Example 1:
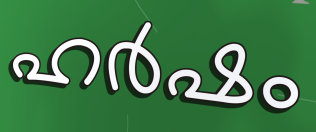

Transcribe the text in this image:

ഹർഷം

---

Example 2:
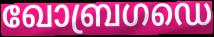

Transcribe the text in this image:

ഖോബ്രഗഡെ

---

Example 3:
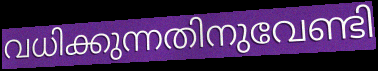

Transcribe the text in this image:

വധിക്കുന്നതിനുവേണ്ടി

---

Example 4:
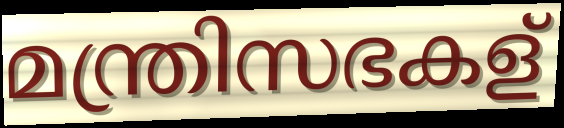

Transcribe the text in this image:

മന്ത്രിസഭകള്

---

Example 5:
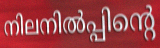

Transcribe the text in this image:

നിലനിൽപ്പിന്റെ